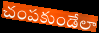
చంపకుండేలా